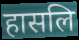
हासलि